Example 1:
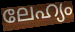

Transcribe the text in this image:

ലേഹ്യം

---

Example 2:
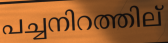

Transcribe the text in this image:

പച്ചനിറത്തില്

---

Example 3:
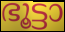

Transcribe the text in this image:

ഭൂട്ടാ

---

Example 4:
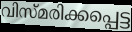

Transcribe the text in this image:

വിസ്മരിക്കപ്പെട്ട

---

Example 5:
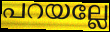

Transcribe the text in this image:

പറയല്ലേ